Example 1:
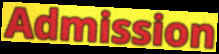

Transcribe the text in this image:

Admission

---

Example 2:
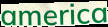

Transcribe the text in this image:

america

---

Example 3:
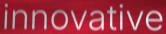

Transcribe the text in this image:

innovative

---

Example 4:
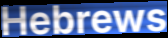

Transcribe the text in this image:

Hebrews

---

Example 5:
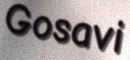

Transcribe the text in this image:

Gosavi